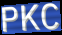
PKC